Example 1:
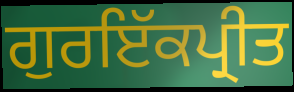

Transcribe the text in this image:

ਗੁਰਇੱਕਪ੍ਰੀਤ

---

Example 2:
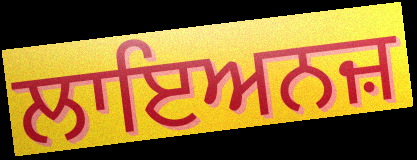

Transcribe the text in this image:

ਲਾਇਅਨਜ਼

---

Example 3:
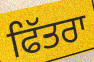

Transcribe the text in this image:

ਫਿੱਤਰਾ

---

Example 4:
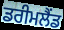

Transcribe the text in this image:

ਡਰੀਮਲੈਂਡ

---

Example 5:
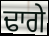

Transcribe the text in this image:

ਢਾਗੇ